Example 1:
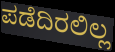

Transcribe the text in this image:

ಪಡೆದಿರಲಿಲ್ಲ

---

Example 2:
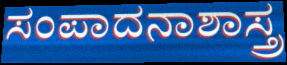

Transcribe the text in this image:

ಸಂಪಾದನಾಶಾಸ್ತ್ರ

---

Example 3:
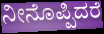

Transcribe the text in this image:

ನೀನೊಪ್ಪಿದರೆ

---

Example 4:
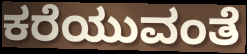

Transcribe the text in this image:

ಕರೆಯುವಂತೆ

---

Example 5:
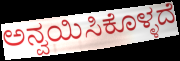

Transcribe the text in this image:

ಅನ್ವಯಿಸಿಕೊಳ್ಳದೆ